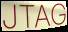
JTAG